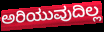
ಅರಿಯುವುದಿಲ್ಲ